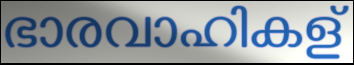
ഭാരവാഹികള്